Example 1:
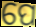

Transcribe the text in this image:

ପେ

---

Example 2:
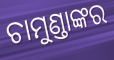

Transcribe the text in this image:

ଚାମୁଣ୍ଡାଙ୍କର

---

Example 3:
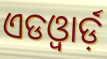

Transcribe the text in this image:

ଏଡଓ୍ବାର୍ଡ଼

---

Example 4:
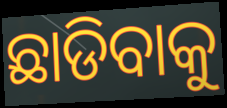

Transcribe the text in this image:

ଛାଡିବାକୁ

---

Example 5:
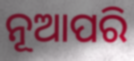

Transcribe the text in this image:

ନୂଆପରି